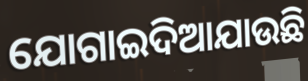
ଯୋଗାଇଦିଆଯାଉଛି